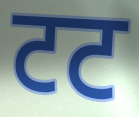
टट